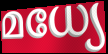
മധ്യേ